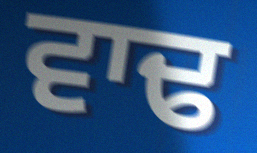
ਵਾਢ